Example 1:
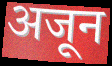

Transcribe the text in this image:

अजून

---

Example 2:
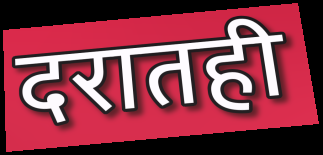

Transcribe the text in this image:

दरातही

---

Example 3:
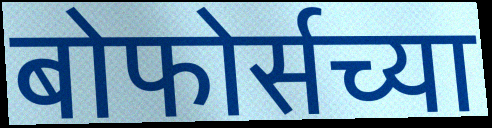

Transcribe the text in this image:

बोफोर्सच्या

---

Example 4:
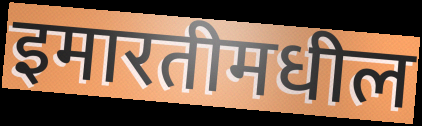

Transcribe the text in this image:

इमारतीमधील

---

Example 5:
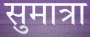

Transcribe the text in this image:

सुमात्रा